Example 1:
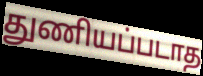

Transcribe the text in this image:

துணியப்படாத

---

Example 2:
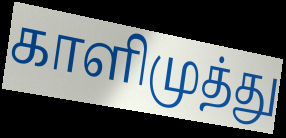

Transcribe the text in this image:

காளிமுத்து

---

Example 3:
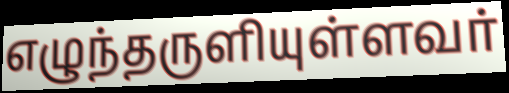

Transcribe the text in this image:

எழுந்தருளியுள்ளவர்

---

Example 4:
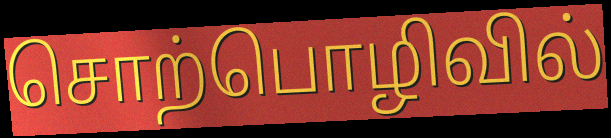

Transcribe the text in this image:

சொற்பொழிவில்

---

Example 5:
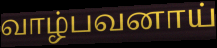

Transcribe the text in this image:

வாழ்பவனாய்